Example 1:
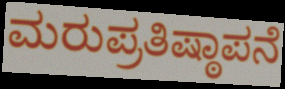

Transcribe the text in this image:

ಮರುಪ್ರತಿಷ್ಠಾಪನೆ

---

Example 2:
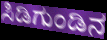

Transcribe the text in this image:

ಸಿಡಿಗುಂಡಿನ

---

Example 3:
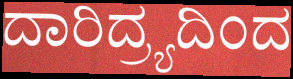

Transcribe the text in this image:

ದಾರಿದ್ರ್ಯದಿಂದ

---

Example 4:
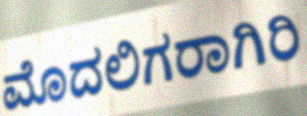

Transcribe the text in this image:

ಮೊದಲಿಗರಾಗಿರಿ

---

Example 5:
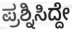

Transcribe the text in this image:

ಪ್ರಶ್ನಿಸಿದ್ದೇ